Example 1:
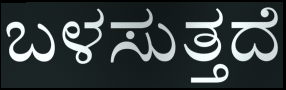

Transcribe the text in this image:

ಬಳಸುತ್ತದೆ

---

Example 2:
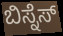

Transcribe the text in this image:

ಬಿಸ್ನೆಸ್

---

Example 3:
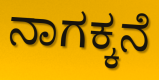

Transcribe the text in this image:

ನಾಗಕ್ಕನೆ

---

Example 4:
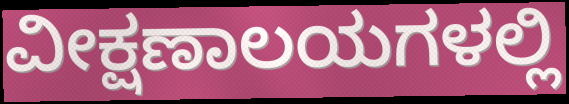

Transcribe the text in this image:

ವೀಕ್ಷಣಾಲಯಗಳಲ್ಲಿ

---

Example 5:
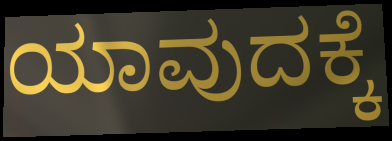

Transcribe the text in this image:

ಯಾವುದಕ್ಕೆ